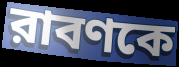
রাবণকে